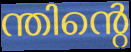
ന്തിന്റെ